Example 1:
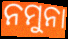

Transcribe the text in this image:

ନମୁନା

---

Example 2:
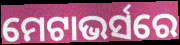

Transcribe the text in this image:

ମେଟାଭର୍ସରେ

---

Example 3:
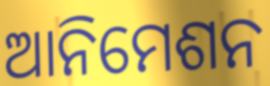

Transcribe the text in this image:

ଆନିମେଶନ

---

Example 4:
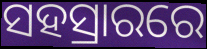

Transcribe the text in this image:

ସହସ୍ରାରରେ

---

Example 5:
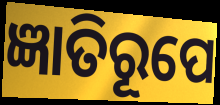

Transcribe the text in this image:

ଜ୍ଞାତିରୂପେ